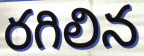
రగిలిన